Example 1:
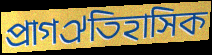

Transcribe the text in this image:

প্ৰাগঐতিহাসিক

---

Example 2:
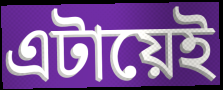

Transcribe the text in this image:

এটায়েই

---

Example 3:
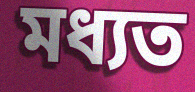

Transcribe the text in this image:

মধ্যত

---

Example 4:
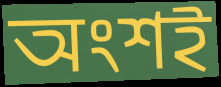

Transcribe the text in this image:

অংশই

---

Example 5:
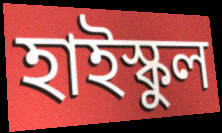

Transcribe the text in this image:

হাইস্কুল